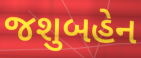
જશુબહેન